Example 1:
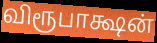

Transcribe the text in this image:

விரூபாக்ஷன்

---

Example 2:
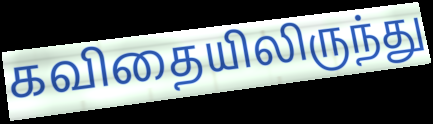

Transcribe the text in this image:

கவிதையிலிருந்து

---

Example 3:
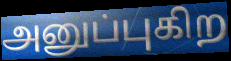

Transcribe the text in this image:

அனுப்புகிற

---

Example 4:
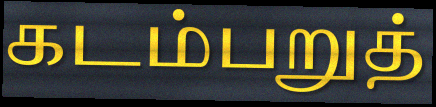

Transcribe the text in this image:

கடம்பறுத்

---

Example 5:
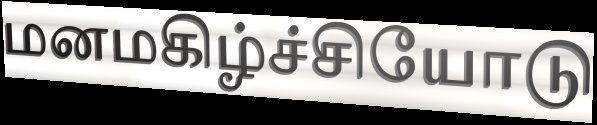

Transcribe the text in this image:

மனமகிழ்ச்சியோடு